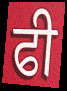
ਫੀ